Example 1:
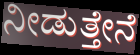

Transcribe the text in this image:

ನೀಡುತ್ತೇನೆ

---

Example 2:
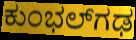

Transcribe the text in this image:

ಕುಂಭಲ್‌ಗಢ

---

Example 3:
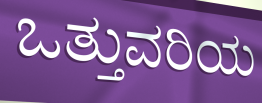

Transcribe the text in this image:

ಒತ್ತುವರಿಯ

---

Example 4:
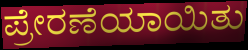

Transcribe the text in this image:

ಪ್ರೇರಣೆಯಾಯಿತು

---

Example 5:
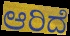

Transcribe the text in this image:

ಆರಿದೆ